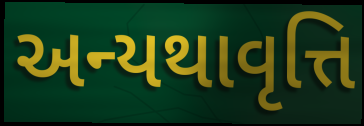
અન્યથાવૃત્તિ